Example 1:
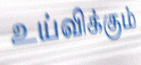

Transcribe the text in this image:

உய்விக்கும்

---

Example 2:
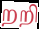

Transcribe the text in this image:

றறி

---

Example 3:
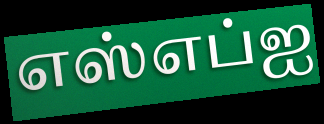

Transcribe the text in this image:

எஸ்எப்ஐ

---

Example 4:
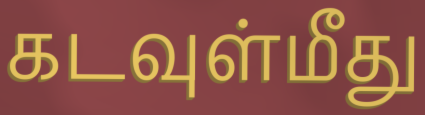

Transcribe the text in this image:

கடவுள்மீது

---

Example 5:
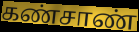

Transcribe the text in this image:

கண்சாண்